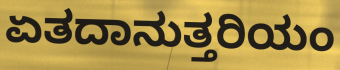
ಏತದಾನುತ್ತರಿಯಂ